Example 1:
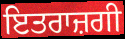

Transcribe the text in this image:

ਇਤਰਾਜ਼ਗੀ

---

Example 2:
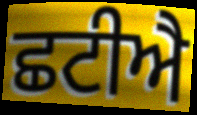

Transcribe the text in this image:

ਛਟੀਐ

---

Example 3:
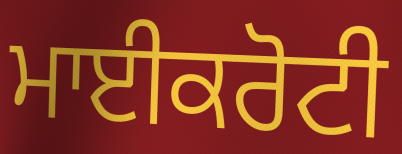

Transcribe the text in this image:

ਮਾਈਕਰੋਟੀ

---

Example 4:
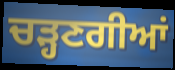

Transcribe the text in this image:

ਚੜ੍ਹਣਗੀਆਂ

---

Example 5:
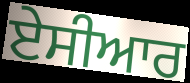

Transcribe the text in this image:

ਏਸੀਆਰ